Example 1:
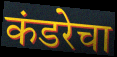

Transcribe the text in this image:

कंडरेचा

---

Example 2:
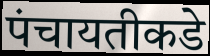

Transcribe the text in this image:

पंचायतीकडे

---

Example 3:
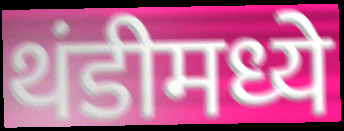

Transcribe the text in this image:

थंडीमध्ये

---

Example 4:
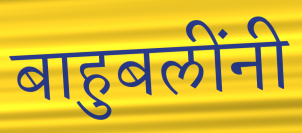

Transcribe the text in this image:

बाहुबलींनी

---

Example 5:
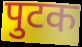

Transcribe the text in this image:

पुटक